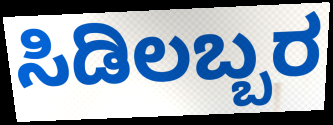
ಸಿಡಿಲಬ್ಬರ